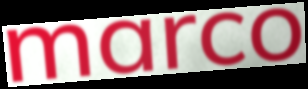
marco